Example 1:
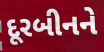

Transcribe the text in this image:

દૂરબીનને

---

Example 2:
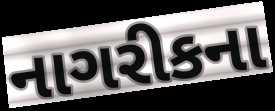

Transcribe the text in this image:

નાગરીકના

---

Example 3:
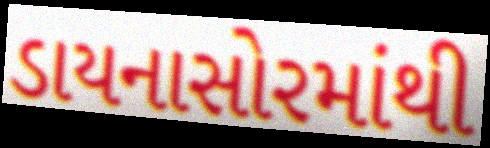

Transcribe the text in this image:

ડાયનાસોરમાંથી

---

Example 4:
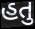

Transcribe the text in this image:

હતુ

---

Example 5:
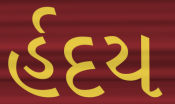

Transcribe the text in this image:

ર્હદય